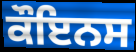
ਕੌਇਨਸ